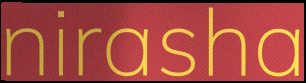
nirasha